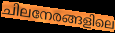
ചിലനേരങ്ങളിലെ